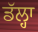
ਡੱਲ੍ਹਾ